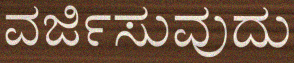
ವರ್ಜಿಸುವುದು